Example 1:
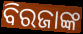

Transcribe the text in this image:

ବିରଜାଙ୍କ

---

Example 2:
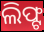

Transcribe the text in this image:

ଲିଫ୍ଟ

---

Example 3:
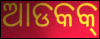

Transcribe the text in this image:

ଆଡକକ୍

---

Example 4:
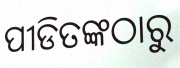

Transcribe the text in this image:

ପୀଡିତଙ୍କଠାରୁ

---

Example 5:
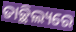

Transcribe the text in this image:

ତାଚ୍ଛିଲ୍ୟରେ